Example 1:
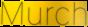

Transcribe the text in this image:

Murch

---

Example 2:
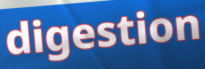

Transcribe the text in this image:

digestion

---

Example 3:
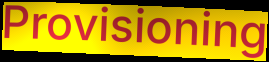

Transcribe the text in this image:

Provisioning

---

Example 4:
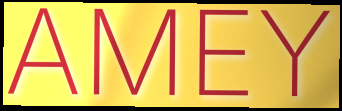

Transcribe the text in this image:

AMEY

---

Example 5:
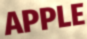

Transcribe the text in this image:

APPLE